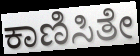
ಕಾಣಿಸಿತೇ